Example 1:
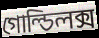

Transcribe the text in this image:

গোল্ডিলক্স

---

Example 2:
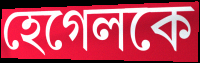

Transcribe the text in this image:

হেগেলকে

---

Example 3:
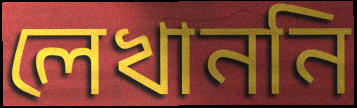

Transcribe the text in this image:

লেখাননি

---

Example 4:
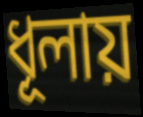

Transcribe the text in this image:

ধূলায়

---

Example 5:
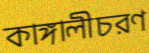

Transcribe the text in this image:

কাঙ্গালীচরণ